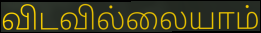
விடவில்லையாம்